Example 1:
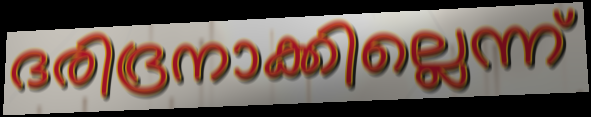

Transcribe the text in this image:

ദരിദ്രനാക്കില്ലെന്ന്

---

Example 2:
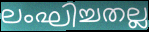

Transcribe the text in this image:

ലംഘിച്ചതല്ല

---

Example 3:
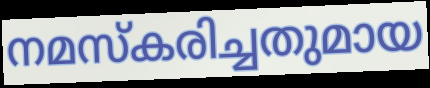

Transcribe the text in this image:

നമസ്കരിച്ചതുമായ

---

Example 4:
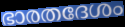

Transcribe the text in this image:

ഭാരതദേശം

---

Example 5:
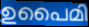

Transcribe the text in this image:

ഉപൈമി